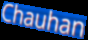
Chauhan